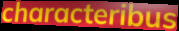
characteribus